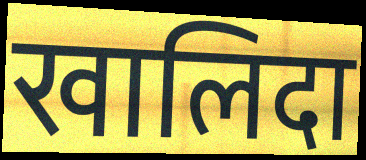
खालिदा